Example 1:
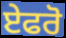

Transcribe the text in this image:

ਏਫਰੋ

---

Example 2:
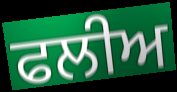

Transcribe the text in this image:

ਫਲੀਅ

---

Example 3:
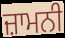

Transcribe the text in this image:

ਜ਼ਾਮਨੀ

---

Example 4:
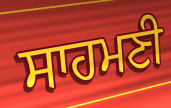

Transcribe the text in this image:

ਸਾਹਮਣੀ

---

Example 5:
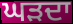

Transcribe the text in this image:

ਘੜਦਾ